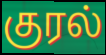
குரல்